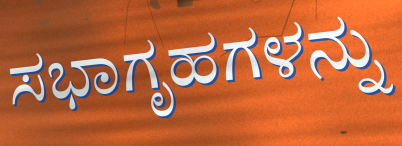
ಸಭಾಗೃಹಗಳನ್ನು